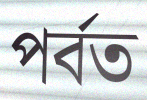
পৰ্বত